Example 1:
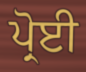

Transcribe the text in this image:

ਪ੍ਰੋਈ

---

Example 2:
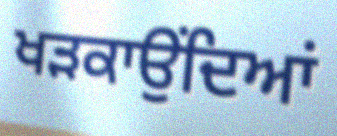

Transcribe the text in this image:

ਖੜਕਾਉਂਦਿਆਂ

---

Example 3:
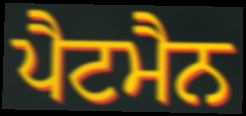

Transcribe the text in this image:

ਪੈਟਮੈਨ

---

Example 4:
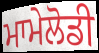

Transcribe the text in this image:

ਮਾਮੇਲੋਡੀ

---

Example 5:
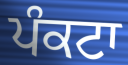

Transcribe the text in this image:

ਪੰਕਟਾ